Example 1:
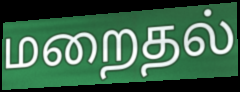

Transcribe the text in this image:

மறைதல்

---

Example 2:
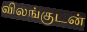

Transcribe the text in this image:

விலங்குடன்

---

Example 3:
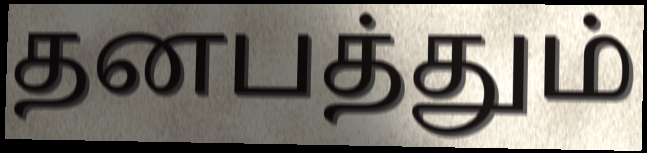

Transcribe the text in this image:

தனபத்தும்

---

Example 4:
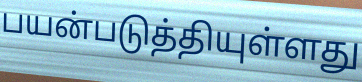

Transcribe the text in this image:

பயன்படுத்தியுள்ளது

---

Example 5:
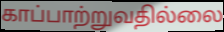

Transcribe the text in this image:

காப்பாற்றுவதில்லை